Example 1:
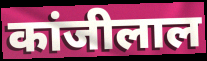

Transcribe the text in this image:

कांजीलाल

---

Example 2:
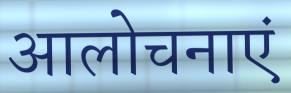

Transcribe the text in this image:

आलोचनाएं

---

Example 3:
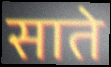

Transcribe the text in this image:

साते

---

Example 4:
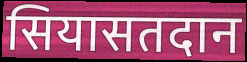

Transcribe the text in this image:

सियासतदान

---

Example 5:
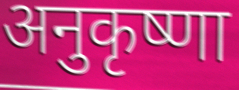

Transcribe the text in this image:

अनुकृष्णा